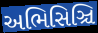
અભિસિઞ્ચિ